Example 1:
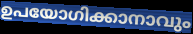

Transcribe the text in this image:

ഉപയോഗിക്കാനാവും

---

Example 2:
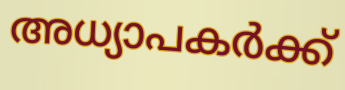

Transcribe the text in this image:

അധ്യാപകർക്ക്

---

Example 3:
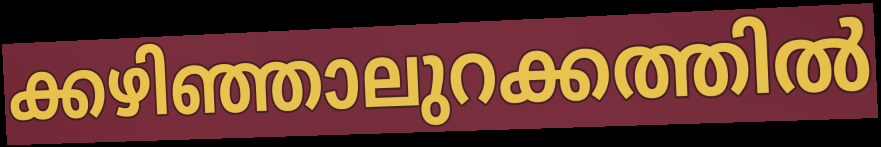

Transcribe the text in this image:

ക്കഴിഞ്ഞാലുറക്കത്തിൽ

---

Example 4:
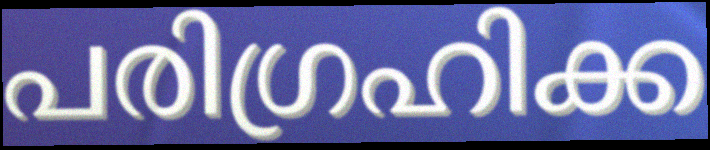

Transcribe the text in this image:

പരിഗ്രഹിക്ക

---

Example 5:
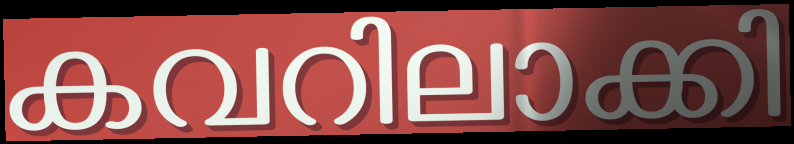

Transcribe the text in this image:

കവറിലാക്കി